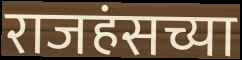
राजहंसच्या